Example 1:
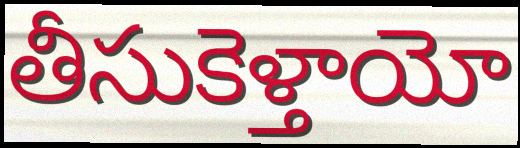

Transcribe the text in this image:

తీసుకెళ్తాయో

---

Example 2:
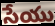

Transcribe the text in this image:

సేయు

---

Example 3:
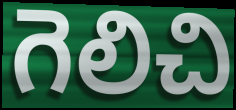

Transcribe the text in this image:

గెలిచి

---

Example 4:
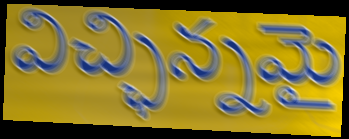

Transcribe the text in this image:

విచ్ఛిన్నమై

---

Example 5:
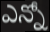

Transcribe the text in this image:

ఎన్నో